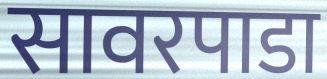
सावरपाडा